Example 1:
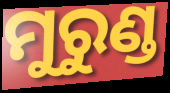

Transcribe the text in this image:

ମୁରୁଣ୍ଡ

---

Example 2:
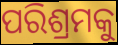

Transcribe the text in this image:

ପରିଶ୍ରମକୁ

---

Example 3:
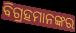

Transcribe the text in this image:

ବିଗ୍ରହମାନଙ୍କର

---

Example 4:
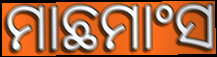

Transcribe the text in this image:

ମାଛମାଂସ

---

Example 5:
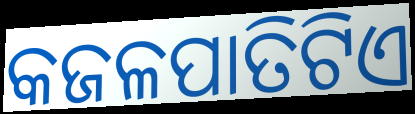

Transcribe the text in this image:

କଜଳପାତିଟିଏ